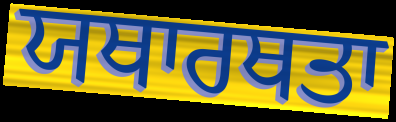
ਯਥਾਰਥਤਾ